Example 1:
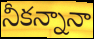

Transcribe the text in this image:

నీకన్నానా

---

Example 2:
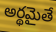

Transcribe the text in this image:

అర్థమైతే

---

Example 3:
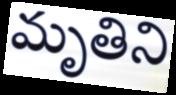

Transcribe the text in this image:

మృతిని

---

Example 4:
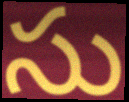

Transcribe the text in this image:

సు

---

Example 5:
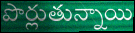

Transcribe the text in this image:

పొర్లుతున్నాయి